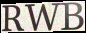
RWB